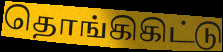
தொங்கிகிட்டு